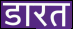
डारत